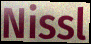
Nissl